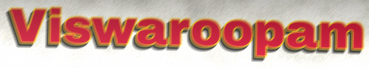
Viswaroopam